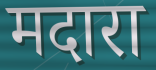
मदारा